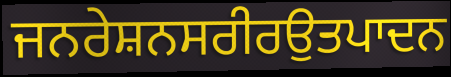
ਜਨਰੇਸ਼ਨਸਰੀਰਉਤਪਾਦਨ